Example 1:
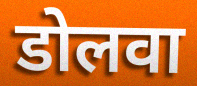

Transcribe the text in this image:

डोलवा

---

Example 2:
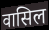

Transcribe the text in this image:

वासिल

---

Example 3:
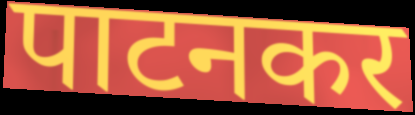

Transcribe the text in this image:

पाटनकर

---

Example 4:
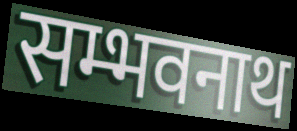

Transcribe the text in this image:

सम्भवनाथ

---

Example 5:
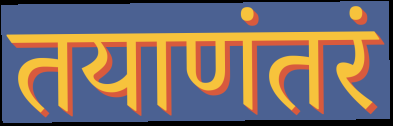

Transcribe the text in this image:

तयाणंतरं